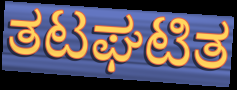
ತಟಘಟಿತ